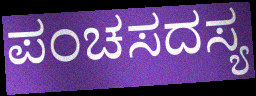
ಪಂಚಸದಸ್ಯ